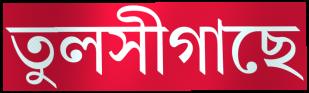
তুলসীগাছে